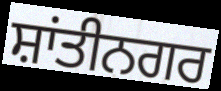
ਸ਼ਾਂਤੀਨਗਰ